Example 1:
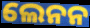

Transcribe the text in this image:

ଲେନନ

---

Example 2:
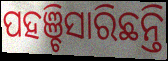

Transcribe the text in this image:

ପହଞ୍ଚିସାରିଛନ୍ତି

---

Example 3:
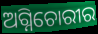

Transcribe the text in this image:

ଅଗ୍ନିଚୋରୀର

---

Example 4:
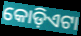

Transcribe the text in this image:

କୋଡ଼ିଏଟା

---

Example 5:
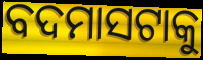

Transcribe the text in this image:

ବଦମାସଟାକୁ